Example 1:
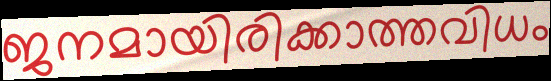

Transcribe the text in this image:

ജനമായിരിക്കാത്തവിധം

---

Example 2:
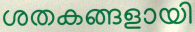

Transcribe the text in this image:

ശതകങ്ങളായി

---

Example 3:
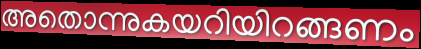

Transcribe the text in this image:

അതൊന്നുകയറിയിറങ്ങണം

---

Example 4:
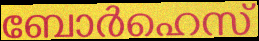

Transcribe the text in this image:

ബോർഹെസ്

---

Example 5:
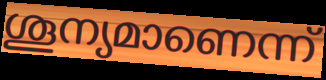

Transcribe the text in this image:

ശൂന്യമാണെന്ന്